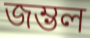
জম্ভল